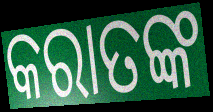
କରାତଙ୍କ